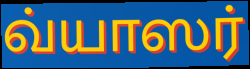
வ்யாஸர்